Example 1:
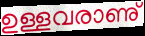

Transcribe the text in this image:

ഉള്ളവരാണു്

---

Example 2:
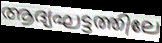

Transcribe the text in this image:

ആദ്യഘട്ടത്തിലേ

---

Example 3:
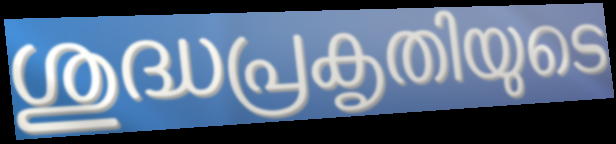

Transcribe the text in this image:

ശുദ്ധപ്രകൃതിയുടെ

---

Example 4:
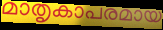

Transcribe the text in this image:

മാതൃകാപരമായ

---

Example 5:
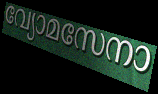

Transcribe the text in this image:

വ്യോമസേനാ